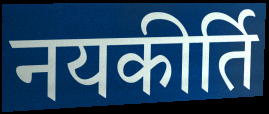
नयकीर्ति